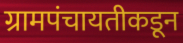
ग्रामपंचायतीकडून